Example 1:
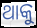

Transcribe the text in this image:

ଥାକୁ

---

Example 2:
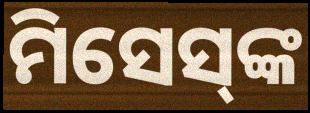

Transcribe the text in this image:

ମିସେସ୍‌ଙ୍କ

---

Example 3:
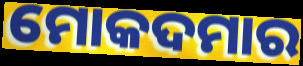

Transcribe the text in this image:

ମୋକଦମାର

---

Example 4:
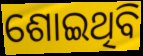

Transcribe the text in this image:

ଶୋଇଥିବି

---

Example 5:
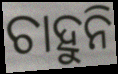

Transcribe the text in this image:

ଚାହୁନି